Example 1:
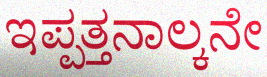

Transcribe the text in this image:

ಇಪ್ಪತ್ತನಾಲ್ಕನೇ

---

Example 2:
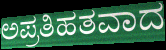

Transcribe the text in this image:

ಅಪ್ರತಿಹತವಾದ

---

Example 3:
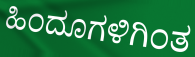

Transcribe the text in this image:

ಹಿಂದೂಗಳಿಗಿಂತ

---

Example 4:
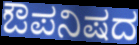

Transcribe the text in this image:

ಔಪನಿಷದ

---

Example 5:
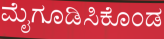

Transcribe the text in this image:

ಮೈಗೂಡಿಸಿಕೊಂಡ